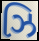
ઝિ